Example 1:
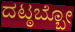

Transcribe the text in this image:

ದಟ್ಠಬ್ಬೋ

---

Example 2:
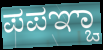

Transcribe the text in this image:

ಪಪಞ್ಚಾ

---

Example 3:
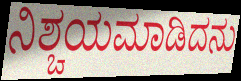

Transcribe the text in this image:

ನಿಶ್ಚಯಮಾಡಿದನು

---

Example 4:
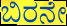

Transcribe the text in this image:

ಬಿರನೇ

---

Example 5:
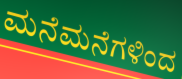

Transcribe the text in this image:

ಮನೆಮನೆಗಳಿಂದ